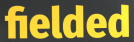
fielded